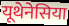
यूथेनेसिया